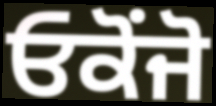
ਓਕੋਂਜੋ